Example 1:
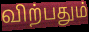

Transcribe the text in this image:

விற்பதும்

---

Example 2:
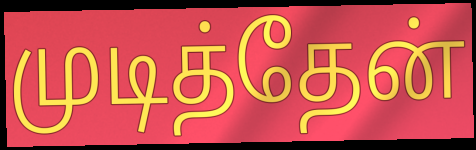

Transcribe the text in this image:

முடித்தேன்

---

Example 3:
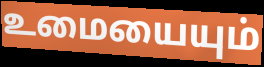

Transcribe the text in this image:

உமையையும்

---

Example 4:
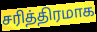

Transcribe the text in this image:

சரித்திரமாக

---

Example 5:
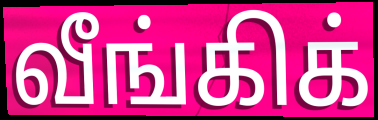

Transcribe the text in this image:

வீங்கிக்